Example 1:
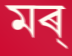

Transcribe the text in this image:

মৰ্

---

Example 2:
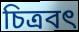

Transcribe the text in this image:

চিত্ৰবৎ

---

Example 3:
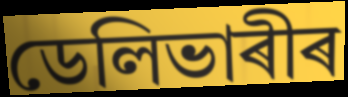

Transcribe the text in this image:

ডেলিভাৰীৰ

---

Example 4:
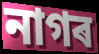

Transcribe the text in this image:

নাগৰ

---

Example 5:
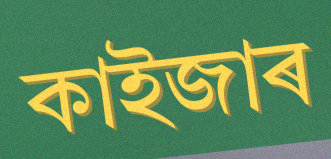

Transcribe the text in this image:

কাইজাৰ